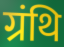
ग्रंथि